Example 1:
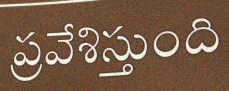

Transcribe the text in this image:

ప్రవేశిస్తుంది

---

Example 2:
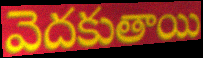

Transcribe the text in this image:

వెదకుతాయి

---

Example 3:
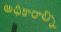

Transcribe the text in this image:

అధికారాల్ని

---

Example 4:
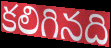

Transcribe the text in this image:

కలిగినది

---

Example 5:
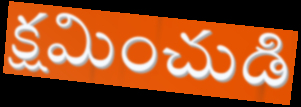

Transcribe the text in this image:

క్షమించుడి